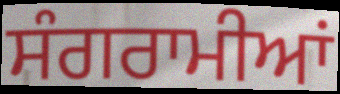
ਸੰਗਰਾਮੀਆਂ